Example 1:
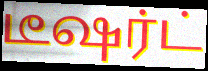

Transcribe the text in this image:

டீஷர்ட்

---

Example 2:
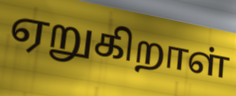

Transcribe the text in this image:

ஏறுகிறாள்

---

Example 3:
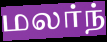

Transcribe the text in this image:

மலர்ந்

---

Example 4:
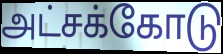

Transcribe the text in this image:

அட்சக்கோடு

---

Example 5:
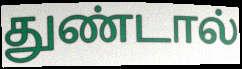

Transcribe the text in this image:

துண்டால்